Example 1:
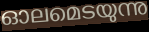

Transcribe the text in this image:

ഓലമെടയുന്നു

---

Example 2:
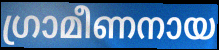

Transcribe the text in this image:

ഗ്രാമീണനായ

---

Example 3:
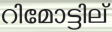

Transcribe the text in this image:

റിമോട്ടില്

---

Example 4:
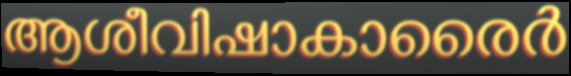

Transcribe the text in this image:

ആശീവിഷാകാരൈർ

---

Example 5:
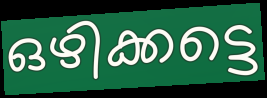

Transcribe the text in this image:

ഒഴിക്കട്ടെ